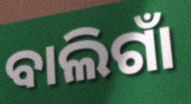
ବାଲିଗାଁ